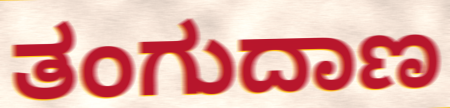
ತಂಗುದಾಣ